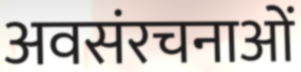
अवसंरचनाओं